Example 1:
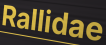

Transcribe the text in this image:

Rallidae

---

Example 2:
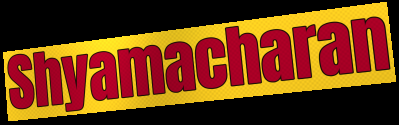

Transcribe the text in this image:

Shyamacharan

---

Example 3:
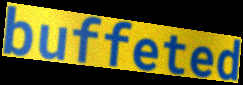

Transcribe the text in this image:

buffeted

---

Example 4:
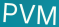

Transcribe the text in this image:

PVM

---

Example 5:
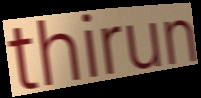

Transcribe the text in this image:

thirun